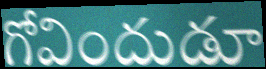
గోవిందుడూ